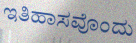
ಇತಿಹಾಸವೊಂದು